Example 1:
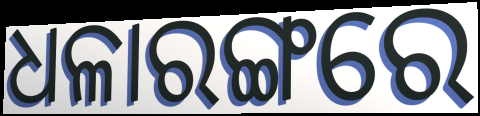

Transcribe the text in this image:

ଧଳାରଙ୍ଗରେ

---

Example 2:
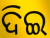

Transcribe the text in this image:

ଦିଇ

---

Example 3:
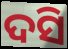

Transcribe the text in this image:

ଦସି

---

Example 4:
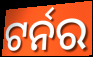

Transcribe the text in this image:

ଟର୍ନର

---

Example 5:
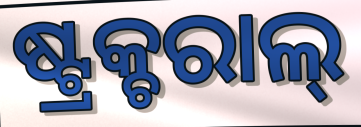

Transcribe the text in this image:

ଷ୍ଟ୍ରକ୍ଚରାଲ୍